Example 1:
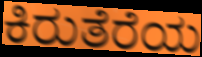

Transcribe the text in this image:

ಕಿರುತೆರೆಯ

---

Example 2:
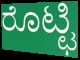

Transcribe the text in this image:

ರೊಟ್ಟಿ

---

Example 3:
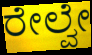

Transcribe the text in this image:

ರೇಲ್ವೇ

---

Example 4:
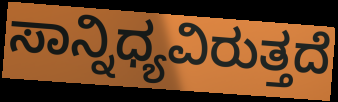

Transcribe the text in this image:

ಸಾನ್ನಿಧ್ಯವಿರುತ್ತದೆ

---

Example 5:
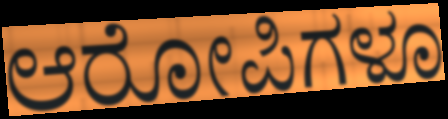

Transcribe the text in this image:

ಆರೋಪಿಗಳೂ